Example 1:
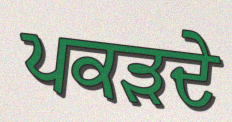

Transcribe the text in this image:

ਪਕੜਦੇ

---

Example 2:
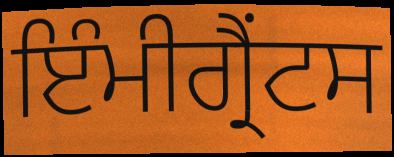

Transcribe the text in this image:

ਇੰਮੀਗ੍ਰੈਂਟਸ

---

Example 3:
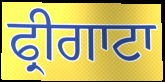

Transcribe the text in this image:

ਫ੍ਰੀਗਾਟਾ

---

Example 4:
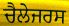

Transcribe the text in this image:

ਚੈਲੇਜਰਸ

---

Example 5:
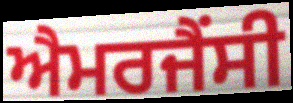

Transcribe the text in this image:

ਐਮਰਜੈਂਸੀ